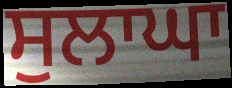
ਸੁਲਾਘਾ